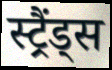
स्ट्रैंड्स